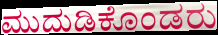
ಮುದುಡಿಕೊಂಡರು